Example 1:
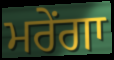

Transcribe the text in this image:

ਮਰੇਂਗਾ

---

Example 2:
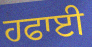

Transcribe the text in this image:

ਹਫਾਈ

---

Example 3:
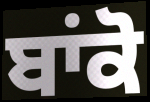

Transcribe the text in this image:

ਬਾਂਕੋ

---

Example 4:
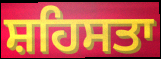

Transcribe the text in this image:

ਸ਼ਹਿਸਤਾ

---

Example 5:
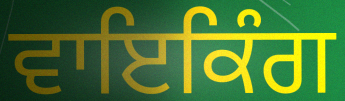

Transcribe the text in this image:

ਵਾਇਕਿੰਗ